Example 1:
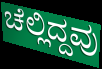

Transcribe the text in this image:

ಚೆಲ್ಲಿದ್ದವು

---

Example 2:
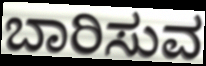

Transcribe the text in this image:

ಬಾರಿಸುವ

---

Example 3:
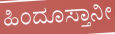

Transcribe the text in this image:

ಹಿಂದೂಸ್ತಾನೀ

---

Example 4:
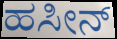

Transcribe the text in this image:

ಹಸೀನ್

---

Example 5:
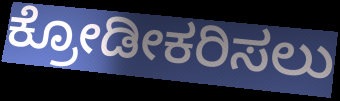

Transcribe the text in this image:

ಕ್ರೋಡೀಕರಿಸಲು